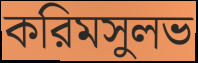
করিমসুলভ